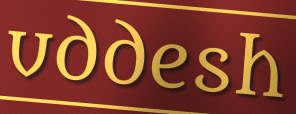
uddesh